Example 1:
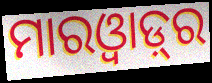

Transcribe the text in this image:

ମାରଓ୍ୱାଡ଼୍‌ର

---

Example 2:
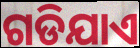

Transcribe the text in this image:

ଗଡିଯାଏ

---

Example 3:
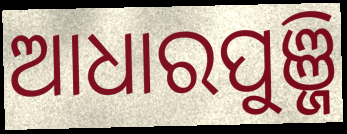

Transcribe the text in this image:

ଆଧାରପୁଞ୍ଜି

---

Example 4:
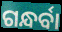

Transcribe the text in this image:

ଗନ୍ଧର୍ବା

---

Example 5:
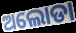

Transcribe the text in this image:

ଅଲୋଡା